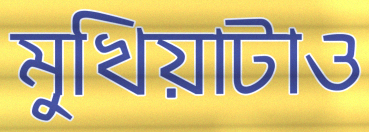
মুখিয়াটাও